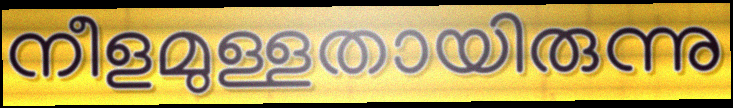
നീളമുള്ളതായിരുന്നു